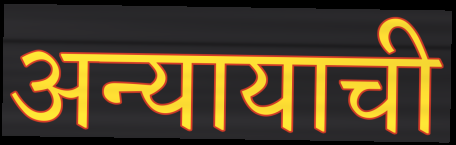
अन्यायाची